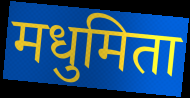
मधुमिता